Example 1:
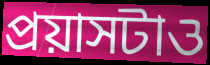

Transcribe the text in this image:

প্রয়াসটাও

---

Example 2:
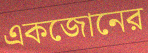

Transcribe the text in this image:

একজোনের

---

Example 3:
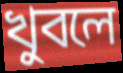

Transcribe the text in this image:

খুবলে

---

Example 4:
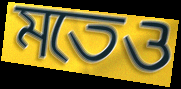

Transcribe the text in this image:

মতেও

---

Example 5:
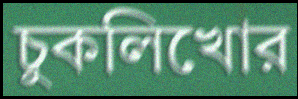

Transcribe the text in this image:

চুকলিখোর